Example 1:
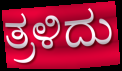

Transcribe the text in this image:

ತ್ರಳಿದು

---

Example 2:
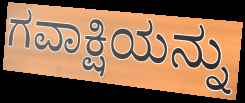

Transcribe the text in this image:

ಗವಾಕ್ಷಿಯನ್ನು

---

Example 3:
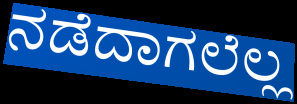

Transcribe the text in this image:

ನಡೆದಾಗಲೆಲ್ಲ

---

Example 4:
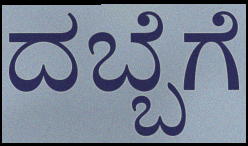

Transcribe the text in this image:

ದಬ್ಬೆಗೆ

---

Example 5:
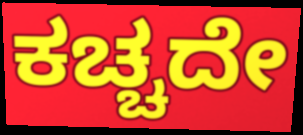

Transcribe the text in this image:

ಕಚ್ಚದೇ